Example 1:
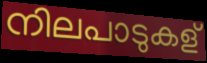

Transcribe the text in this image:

നിലപാടുകള്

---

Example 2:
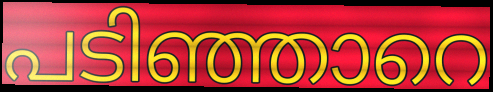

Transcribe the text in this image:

പടിഞ്ഞാറെ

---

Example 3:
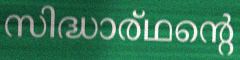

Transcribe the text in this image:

സിദ്ധാര്ഥന്റെ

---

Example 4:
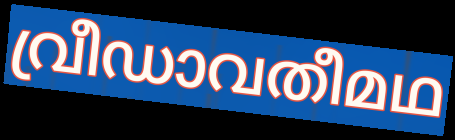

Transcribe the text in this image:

വ്രീഡാവതീമഥ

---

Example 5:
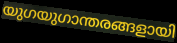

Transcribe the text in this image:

യുഗയുഗാന്തരങ്ങളായി